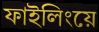
ফাইলিংয়ে